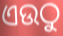
ଏଉଠୁ